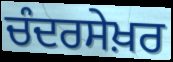
ਚੰਦਰਸੇਖ਼ਰ